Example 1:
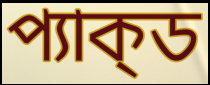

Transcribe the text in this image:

প্যাক্‌ড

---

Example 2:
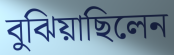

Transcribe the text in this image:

বুঝিয়াছিলেন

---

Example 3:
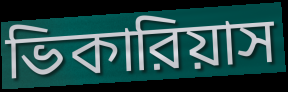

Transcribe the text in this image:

ভিকারিয়াস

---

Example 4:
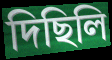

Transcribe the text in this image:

দিছিলি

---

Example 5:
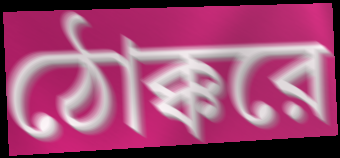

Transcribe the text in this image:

ঠোক্করে